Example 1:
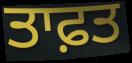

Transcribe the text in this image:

ਤਾਫ਼ਤ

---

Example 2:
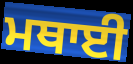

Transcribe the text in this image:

ਮਥਾਈ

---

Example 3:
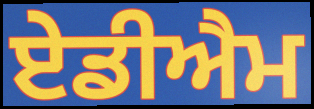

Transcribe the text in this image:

ਏਡੀਐਮ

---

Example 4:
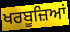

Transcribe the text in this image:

ਖਰਬੂਜ਼ਿਆਂ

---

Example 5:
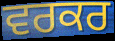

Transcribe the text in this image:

ਵਰਕਰ